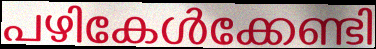
പഴികേൾക്കേണ്ടി